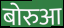
बोरुआ